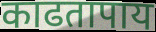
काढतापाय